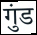
गुंड